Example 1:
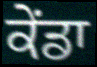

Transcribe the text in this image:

ਕੇਂਡਾ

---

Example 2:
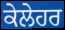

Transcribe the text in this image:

ਕੇਲੇਹਰ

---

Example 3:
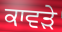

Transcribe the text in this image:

ਕਾਵੜੇ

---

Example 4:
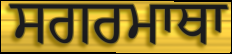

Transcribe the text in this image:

ਸਗਰਮਾਥਾ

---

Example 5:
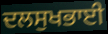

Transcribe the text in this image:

ਦਲਸੁਖਭਾਈ